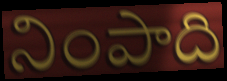
నింపాది